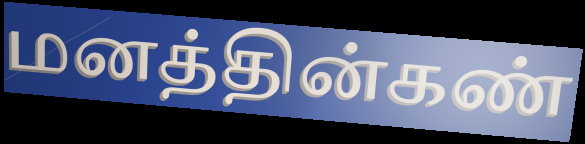
மனத்தின்கண்